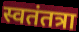
स्वतंतत्रा